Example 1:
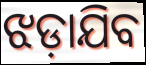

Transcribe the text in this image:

ଝଡ଼ାଯିବ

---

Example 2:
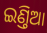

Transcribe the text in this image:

ଇଣ୍ତିଆ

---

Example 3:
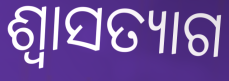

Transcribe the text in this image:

ଶ୍ବାସତ୍ୟାଗ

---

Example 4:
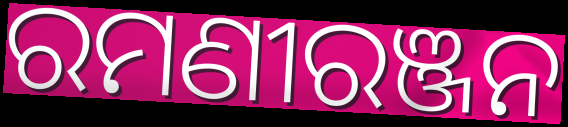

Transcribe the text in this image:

ରମଣୀରଞ୍ଜନ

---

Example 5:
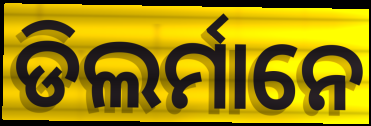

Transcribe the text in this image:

ଡିଲର୍ମାନେ